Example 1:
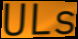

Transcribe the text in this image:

ULs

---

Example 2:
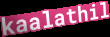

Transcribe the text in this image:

kaalathil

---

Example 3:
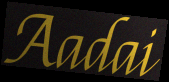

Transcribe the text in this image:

Aadai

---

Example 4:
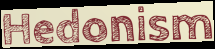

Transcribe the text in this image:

Hedonism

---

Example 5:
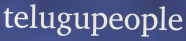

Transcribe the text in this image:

telugupeople